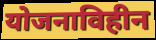
योजनाविहीन